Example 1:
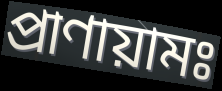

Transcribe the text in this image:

প্রাণায়ামঃ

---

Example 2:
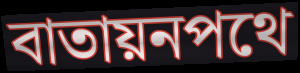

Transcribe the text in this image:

বাতায়নপথে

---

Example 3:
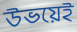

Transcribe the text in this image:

উভয়েই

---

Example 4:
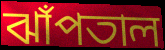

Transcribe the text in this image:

ঝাঁপতাল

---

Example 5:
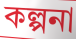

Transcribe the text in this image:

কল্পনা